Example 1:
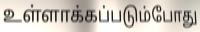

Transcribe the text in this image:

உள்ளாக்கப்படும்போது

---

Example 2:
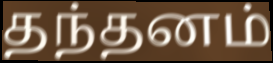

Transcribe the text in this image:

தந்தனம்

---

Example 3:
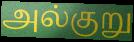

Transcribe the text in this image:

அல்குறு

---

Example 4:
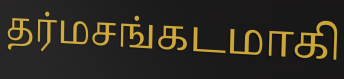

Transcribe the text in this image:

தர்மசங்கடமாகி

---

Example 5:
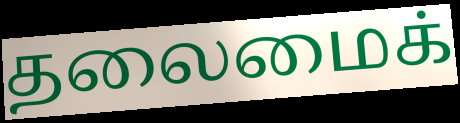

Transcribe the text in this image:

தலைமைக்